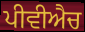
ਪੀਵੀਐਚ